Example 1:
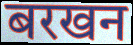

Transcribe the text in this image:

बरखन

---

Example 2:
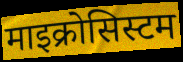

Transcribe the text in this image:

माइक्रोसिस्टम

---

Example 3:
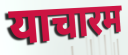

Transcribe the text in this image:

याचारम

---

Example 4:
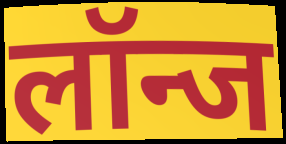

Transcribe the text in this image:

लॉन्ज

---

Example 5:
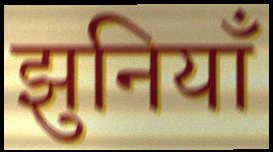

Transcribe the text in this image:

झुनियाँ